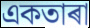
একতাৰা